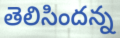
తెలిసిందన్న